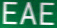
EAE